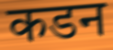
कडन